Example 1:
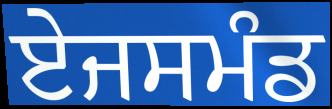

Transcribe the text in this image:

ਏਜਸਮੰਡ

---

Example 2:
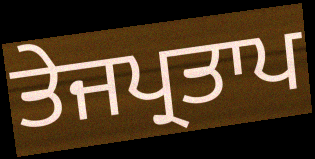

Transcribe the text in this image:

ਤੇਜਪ੍ਰਤਾਪ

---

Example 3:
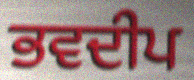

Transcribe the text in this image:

ਭਵਦੀਪ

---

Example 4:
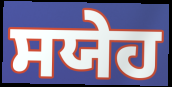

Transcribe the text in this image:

ਸਯੇਹ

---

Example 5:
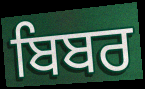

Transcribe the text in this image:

ਬਿਬਰ